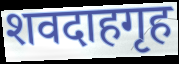
शवदाहगृह